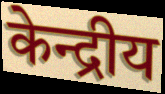
केन्द्रीय